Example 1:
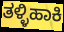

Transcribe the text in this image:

ತಳ್ಳಿಹಾಕಿ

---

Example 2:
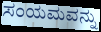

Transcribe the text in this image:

ಸಂಯಮವನ್ನು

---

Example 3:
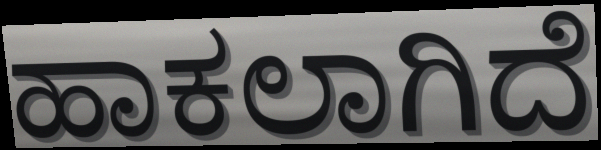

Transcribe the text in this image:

ಹಾಕಲಾಗಿದೆ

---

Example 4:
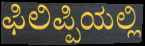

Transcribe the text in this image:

ಫಿಲಿಪ್ಪಿಯಲ್ಲಿ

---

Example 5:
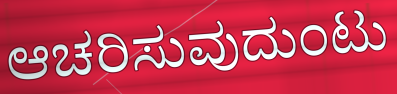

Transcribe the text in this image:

ಆಚರಿಸುವುದುಂಟು